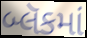
બ્લૅકમાં